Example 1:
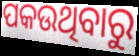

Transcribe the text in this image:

ପକଉଥିବାରୁ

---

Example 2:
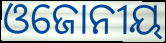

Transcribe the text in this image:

ଓଜୋନୀୟ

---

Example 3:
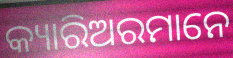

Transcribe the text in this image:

କ୍ୟାରିଅରମାନେ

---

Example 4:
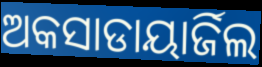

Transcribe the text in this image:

ଅକସାଡାୟାର୍ଜିଲ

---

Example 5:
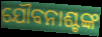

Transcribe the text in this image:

ଯୌବନାଶ୍ଚଙ୍କ